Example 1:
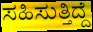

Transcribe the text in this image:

ಸಹಿಸುತ್ತಿದ್ದೆ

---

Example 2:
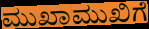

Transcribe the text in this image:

ಮುಖಾಮುಖಿಗೆ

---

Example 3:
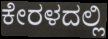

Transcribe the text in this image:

ಕೇರಳದಲ್ಲಿ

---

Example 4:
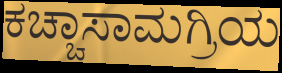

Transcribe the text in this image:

ಕಚ್ಚಾಸಾಮಗ್ರಿಯ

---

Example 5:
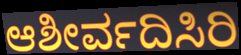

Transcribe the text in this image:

ಆಶೀರ್ವದಿಸಿರಿ